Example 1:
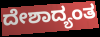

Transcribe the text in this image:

ದೇಶಾದ್ಯಂತ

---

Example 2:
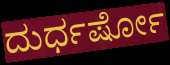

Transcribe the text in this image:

ದುರ್ಧರ್ಷೋ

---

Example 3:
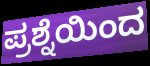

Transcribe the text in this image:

ಪ್ರಶ್ನೆಯಿಂದ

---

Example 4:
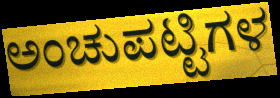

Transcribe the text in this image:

ಅಂಚುಪಟ್ಟಿಗಳ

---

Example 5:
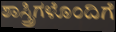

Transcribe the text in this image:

ಶಾಸ್ತ್ರಿಗಳೊಂದಿಗೆ